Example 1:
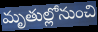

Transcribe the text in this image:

మృతుల్లోనుంచి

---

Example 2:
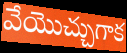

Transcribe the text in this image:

వేయొచ్చుగాక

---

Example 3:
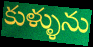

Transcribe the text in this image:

కుళ్ళును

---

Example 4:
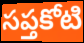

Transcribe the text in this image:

సప్తకోటి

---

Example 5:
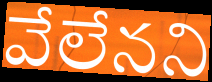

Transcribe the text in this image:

వేలేనని